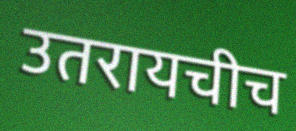
उतरायचीच